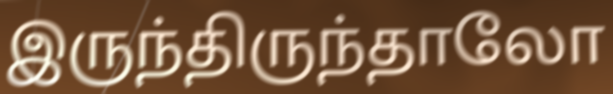
இருந்திருந்தாலோ